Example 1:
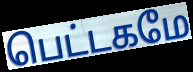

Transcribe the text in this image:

பெட்டகமே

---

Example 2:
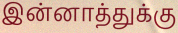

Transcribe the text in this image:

இன்னாத்துக்கு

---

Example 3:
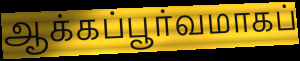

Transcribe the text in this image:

ஆக்கப்பூர்வமாகப்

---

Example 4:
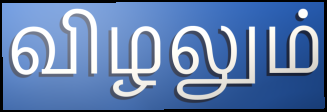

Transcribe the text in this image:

விழலும்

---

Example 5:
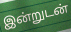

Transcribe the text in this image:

இன்றுடன்